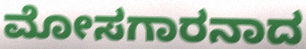
ಮೋಸಗಾರನಾದ